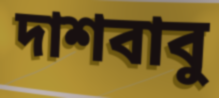
দাশবাবু